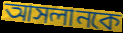
আসলানকে